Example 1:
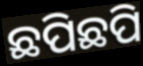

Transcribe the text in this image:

ଛପିଛପି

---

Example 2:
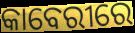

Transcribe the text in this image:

କାବେରୀରେ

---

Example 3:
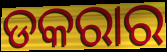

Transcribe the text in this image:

ଡକରାର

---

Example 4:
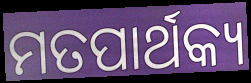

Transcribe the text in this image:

ମତପାର୍ଥକ୍ୟ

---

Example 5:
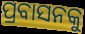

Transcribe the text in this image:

ପ୍ରବାସନକୁ